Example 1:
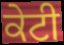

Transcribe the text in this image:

ਕੇਟੀ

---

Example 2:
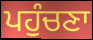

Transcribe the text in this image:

ਪਹੁੰਚਣਾ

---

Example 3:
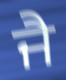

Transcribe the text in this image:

ਜੈ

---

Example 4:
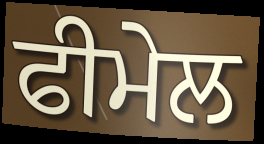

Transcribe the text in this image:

ਫੀਮੇਲ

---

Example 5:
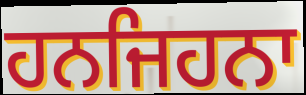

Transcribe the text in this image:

ਹਨਜਿਹਨਾ